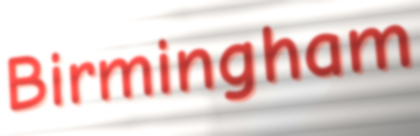
Birmingham